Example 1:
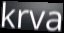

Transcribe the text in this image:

krva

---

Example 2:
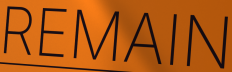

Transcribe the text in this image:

REMAIN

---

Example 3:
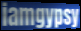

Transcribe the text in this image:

iamgypsy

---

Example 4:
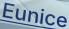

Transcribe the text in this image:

Eunice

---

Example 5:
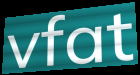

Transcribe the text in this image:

vfat